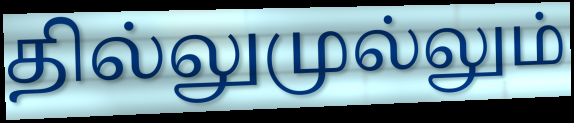
தில்லுமுல்லும்